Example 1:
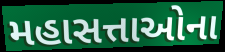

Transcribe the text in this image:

મહાસત્તાઓના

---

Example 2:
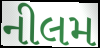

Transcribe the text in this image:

નીલમ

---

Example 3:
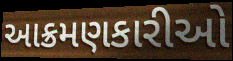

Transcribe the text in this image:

આક્રમણકારીઓ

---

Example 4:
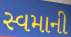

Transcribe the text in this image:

સ્વમાની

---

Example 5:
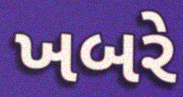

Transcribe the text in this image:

ખબરે